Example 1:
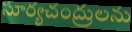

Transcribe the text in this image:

సూర్యచంద్రులను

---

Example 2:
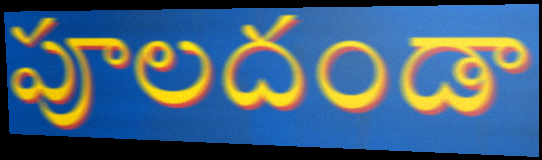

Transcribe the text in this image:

పూలదండా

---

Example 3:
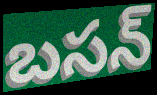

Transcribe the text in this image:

బసన్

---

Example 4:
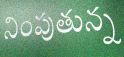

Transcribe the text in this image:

నింపుతున్న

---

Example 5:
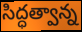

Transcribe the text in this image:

సిద్ధత్వాన్న